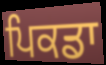
ਪਿਕਡਾ